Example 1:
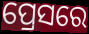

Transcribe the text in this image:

ପ୍ରେସରେ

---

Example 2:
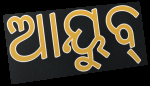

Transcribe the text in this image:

ଆୟୁବ୍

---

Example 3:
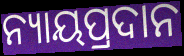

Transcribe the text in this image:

ନ୍ୟାୟପ୍ରଦାନ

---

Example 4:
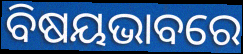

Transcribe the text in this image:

ବିଷୟଭାବରେ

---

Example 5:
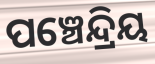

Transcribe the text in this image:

ପଞ୍ଚେନ୍ଦ୍ରିୟ